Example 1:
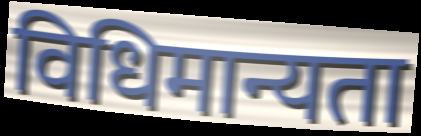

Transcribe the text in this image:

विधिमान्यता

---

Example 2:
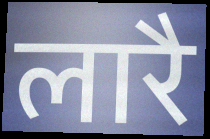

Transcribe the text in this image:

लारै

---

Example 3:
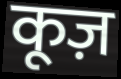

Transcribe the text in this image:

कूज़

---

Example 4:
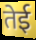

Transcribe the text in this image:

तेई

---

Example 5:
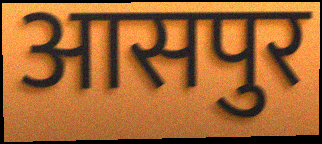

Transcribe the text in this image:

आसपुर